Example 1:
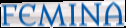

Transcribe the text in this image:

FEMINA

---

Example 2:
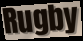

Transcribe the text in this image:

Rugby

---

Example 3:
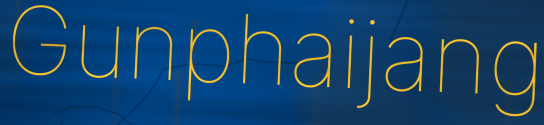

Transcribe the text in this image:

Gunphaijang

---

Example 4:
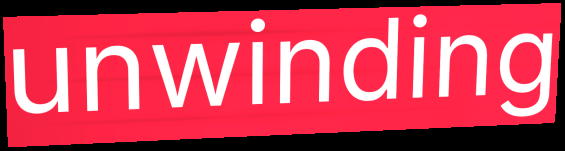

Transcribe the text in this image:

unwinding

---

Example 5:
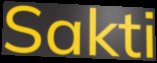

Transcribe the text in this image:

Sakti